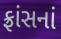
ફ્રાંસનાં